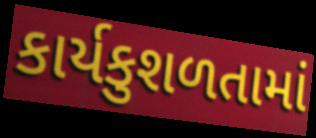
કાર્યકુશળતામાં